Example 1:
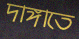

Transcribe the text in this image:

দাঙ্গাতে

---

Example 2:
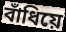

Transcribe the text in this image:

বাঁধিয়ে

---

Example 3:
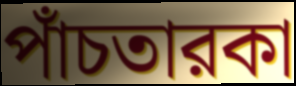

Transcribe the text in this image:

পাঁচতারকা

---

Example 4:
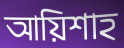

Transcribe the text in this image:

আয়িশাহ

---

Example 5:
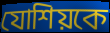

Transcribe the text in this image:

যোশিয়কে